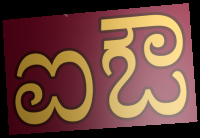
ಐಔ